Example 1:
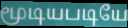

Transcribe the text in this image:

மூடியபடியே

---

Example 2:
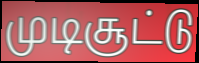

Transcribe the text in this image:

முடிசூட்டு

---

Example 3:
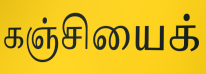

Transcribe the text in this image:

கஞ்சியைக்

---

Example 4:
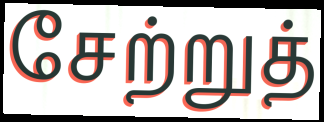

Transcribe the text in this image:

சேற்றுத்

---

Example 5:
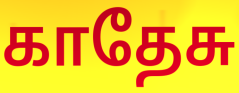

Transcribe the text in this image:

காதேசு